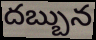
దబ్బున